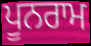
ਪੂਨਰਾਮ